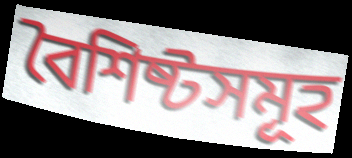
বৈশিষ্টসমূহ